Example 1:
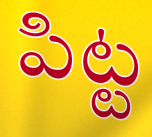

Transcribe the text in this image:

పిట్ట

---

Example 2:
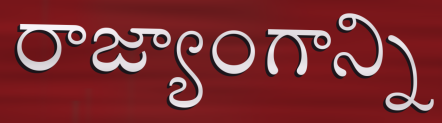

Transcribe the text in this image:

రాజ్యాంగాన్ని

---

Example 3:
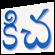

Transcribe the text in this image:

కిచ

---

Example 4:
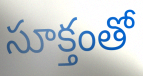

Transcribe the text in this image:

సూక్తంతో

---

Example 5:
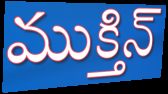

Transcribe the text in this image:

ముక్తిన్